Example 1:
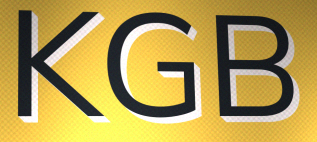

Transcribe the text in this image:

KGB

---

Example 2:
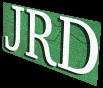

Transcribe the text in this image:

JRD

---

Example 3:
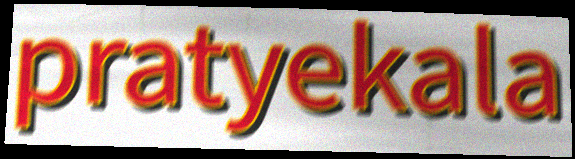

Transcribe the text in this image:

pratyekala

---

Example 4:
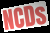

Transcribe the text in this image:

NCDs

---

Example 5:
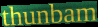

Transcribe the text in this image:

thunbam